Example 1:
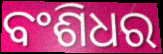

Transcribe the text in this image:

ବଂଶିଧର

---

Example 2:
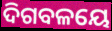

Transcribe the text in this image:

ଦିଗବଳୟେ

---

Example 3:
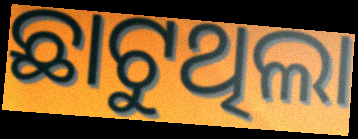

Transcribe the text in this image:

ଛାଟୁଥିଲା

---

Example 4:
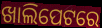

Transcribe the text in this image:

ଖାଲିପେଟରେ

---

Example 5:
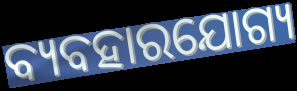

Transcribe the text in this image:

ବ୍ୟବହାରଯୋଗ୍ୟ